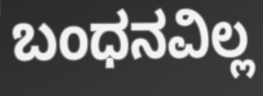
ಬಂಧನವಿಲ್ಲ